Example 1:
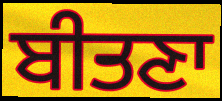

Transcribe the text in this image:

ਬੀਤਣਾ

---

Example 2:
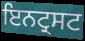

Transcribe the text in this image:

ਇਨਟ੍ਰਸਟ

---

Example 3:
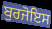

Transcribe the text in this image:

ਬੁਰਜੋਇਸ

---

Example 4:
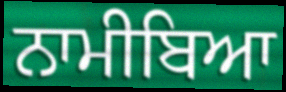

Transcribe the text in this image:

ਨਾਮੀਬਿਆ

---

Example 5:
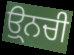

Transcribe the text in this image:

ਉ੍ਨਚੀ